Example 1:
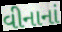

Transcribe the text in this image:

વીનાનાં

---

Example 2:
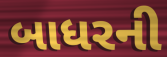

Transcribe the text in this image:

બાધરની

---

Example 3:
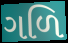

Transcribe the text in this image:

ગળિ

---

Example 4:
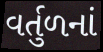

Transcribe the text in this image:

વર્તુળનાં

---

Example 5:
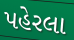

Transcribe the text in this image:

પહેરલા